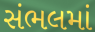
સંભલમાં